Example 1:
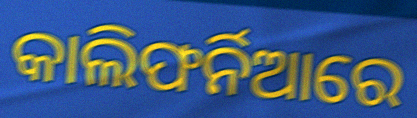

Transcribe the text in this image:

କାଲିଫର୍ନିଆରେ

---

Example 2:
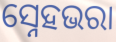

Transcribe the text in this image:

ସ୍ନେହଭରା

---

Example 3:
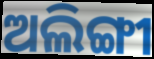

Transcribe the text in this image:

ଅଲିଙ୍ଗୀ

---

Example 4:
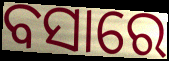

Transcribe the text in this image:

ବସାରେ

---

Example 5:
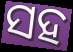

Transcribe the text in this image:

ସହ